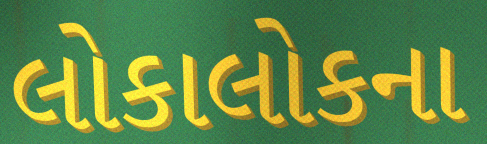
લોકાલોકના